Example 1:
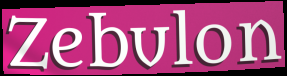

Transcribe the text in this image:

Zebulon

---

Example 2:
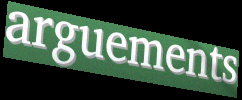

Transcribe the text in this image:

arguements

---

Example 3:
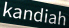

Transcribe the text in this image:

kandiah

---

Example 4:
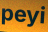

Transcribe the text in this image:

peyi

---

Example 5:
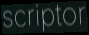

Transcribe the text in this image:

scriptor